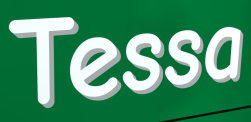
Tessa